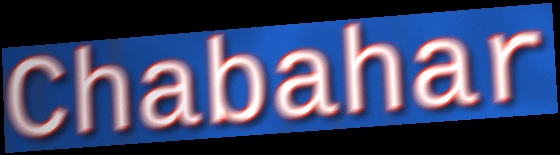
Chabahar